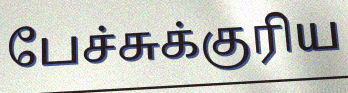
பேச்சுக்குரிய